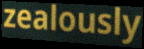
zealously